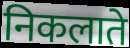
निकलाते